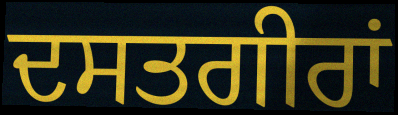
ਦਸਤਗੀਰਾਂ